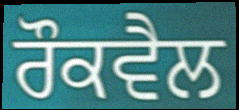
ਰੌਕਵੈਲ